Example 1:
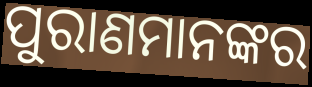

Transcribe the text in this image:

ପୁରାଣମାନଙ୍କର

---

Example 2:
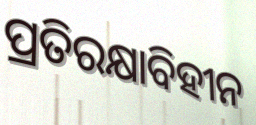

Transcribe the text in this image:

ପ୍ରତିରକ୍ଷାବିହୀନ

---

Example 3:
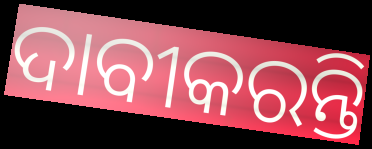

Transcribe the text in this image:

ଦାବୀକରନ୍ତି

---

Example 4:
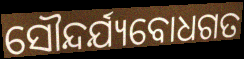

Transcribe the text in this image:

ସୌନ୍ଦର୍ଯ୍ୟବୋଧଗତ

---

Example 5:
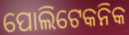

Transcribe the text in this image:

ପୋଲିଟେକନିକ